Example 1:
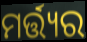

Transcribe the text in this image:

ମର୍ତ୍ତ୍ୟର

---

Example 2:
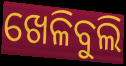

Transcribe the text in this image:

ଖେଳିବୁଲି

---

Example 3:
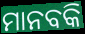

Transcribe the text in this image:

ମାନବକି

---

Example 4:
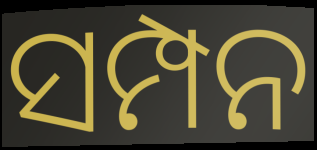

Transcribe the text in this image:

ସମ୍ପନ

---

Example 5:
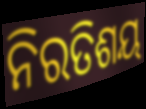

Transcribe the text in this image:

ନିରତିଶୟ